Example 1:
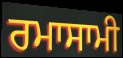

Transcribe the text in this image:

ਰਮਾਸਾਮੀ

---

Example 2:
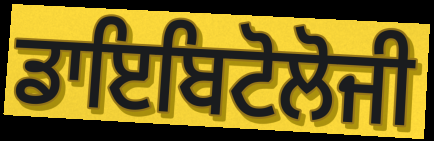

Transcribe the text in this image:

ਡਾਇਬਿਟੋਲੋਜੀ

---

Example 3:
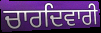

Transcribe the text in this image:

ਚਾਰਦਿਵਾਰੀ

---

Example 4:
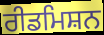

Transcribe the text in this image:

ਰੀਡਮਿਸ਼ਨ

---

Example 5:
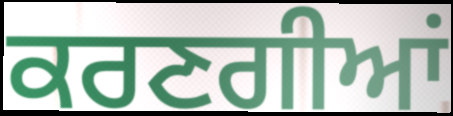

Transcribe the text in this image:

ਕਰਣਗੀਆਂ